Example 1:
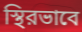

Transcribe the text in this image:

স্থিরভাবে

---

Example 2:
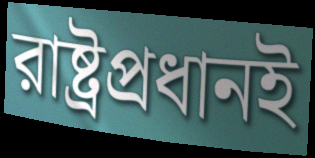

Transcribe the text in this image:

রাষ্ট্রপ্রধানই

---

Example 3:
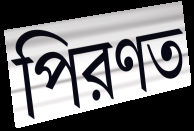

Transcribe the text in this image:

পিরণত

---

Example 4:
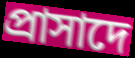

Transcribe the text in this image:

প্রাসাদে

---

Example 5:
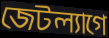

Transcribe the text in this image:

জেটল্যাগে